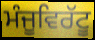
ਮੰਜੂਵਿਰੱਟੂ